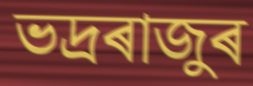
ভদ্ৰৰাজুৰ